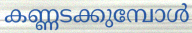
കണ്ണടക്കുമ്പോൾ